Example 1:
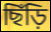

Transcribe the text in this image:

ছিঁড়ি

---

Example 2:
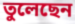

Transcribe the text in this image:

তুলেছেন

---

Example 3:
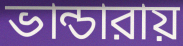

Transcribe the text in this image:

ভান্ডারায়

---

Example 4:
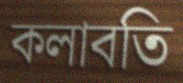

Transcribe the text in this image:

কলাবতি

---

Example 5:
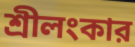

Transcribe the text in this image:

শ্রীলংকার